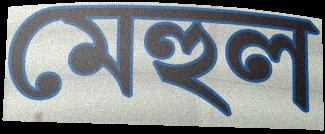
মেহুল